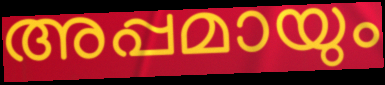
അപ്പമായും